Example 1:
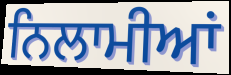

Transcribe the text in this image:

ਨਿਲਾਮੀਆਂ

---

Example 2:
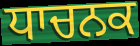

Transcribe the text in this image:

ਧਾਚਨਕ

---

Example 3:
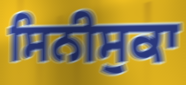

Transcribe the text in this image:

ਸਿਨੀਸੁਕਾ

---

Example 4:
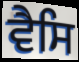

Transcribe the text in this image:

ਵੈਸਿ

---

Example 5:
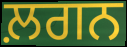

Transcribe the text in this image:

ਲ਼ਗਨ